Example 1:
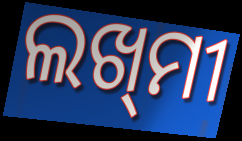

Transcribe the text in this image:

ଲଖ୍‌ମୀ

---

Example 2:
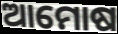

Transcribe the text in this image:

ଆମୋଷ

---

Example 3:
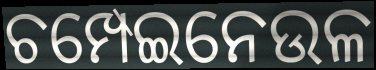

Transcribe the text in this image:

ଚମ୍ପେଇନେଉଳ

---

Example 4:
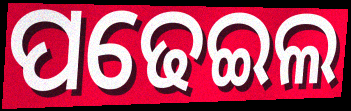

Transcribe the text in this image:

ପଢେଇଲ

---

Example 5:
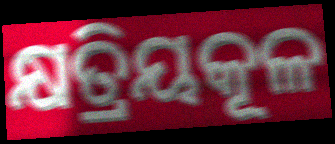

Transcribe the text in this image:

କ୍ଷତ୍ରିୟକୂଳ